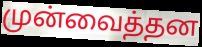
முன்வைத்தன